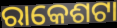
ରାକେଶଟା